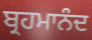
ਬ੍ਰਹਮਾਨੰਦ